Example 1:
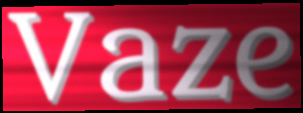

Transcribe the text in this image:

Vaze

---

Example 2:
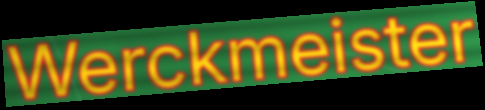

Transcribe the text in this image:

Werckmeister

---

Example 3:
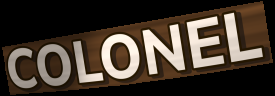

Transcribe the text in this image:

COLONEL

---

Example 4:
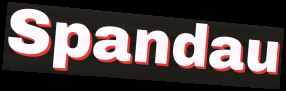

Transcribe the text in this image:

Spandau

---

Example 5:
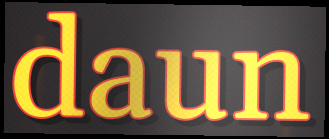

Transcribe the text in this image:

daun